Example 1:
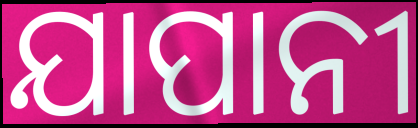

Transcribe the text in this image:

ଯାପାନୀ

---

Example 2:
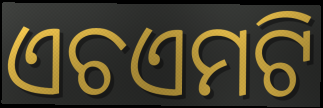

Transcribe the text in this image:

ଏଚଏମଟି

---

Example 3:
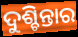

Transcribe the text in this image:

ଦୁଶ୍ଚିନ୍ତାର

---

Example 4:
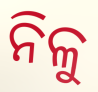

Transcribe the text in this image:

ନିଳୁ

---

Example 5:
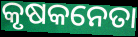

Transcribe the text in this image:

କୃଷକନେତା